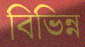
বিভিন্ন